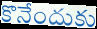
కొనేందుకు